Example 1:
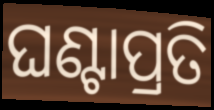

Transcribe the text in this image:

ଘଣ୍ଟାପ୍ରତି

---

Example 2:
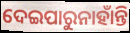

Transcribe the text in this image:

ଦେଇପାରୁନାହାଁନ୍ତି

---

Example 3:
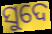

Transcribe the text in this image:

ସୁଦେ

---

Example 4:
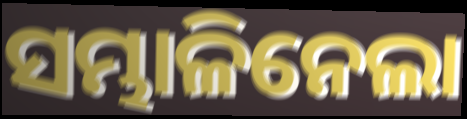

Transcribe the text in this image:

ସମ୍ଭାଳିନେଲା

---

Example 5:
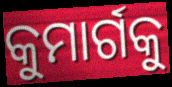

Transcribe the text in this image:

କୁମାର୍ଗକୁ